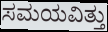
ಸಮಯವಿತ್ತು